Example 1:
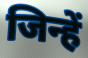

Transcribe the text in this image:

जिन्हें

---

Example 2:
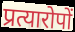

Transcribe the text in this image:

प्रत्यारोपों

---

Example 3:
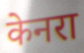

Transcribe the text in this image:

केनरा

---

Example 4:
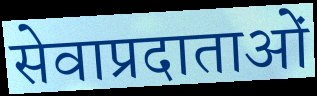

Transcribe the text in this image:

सेवाप्रदाताओं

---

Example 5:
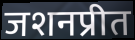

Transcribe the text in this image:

जशनप्रीत